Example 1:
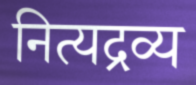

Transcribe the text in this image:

नित्यद्रव्य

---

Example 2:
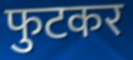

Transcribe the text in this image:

फुटकर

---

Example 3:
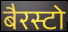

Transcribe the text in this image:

बैरस्टो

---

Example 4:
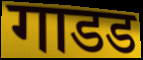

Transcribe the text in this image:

गाडड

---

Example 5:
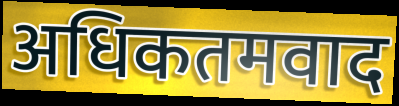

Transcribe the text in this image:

अधिकतमवाद